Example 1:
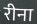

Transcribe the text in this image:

रीना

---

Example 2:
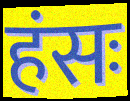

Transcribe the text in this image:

हंसः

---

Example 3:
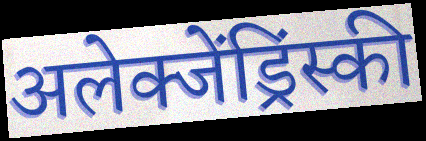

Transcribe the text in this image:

अलेक्जेंड्रिंस्की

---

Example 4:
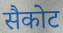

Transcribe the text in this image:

सैकोट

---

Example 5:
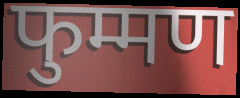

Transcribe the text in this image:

फुम्मण